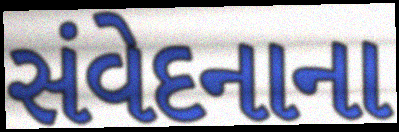
સંવેદનાના